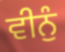
ਵੀਨੁੰ